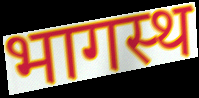
भागस्थ